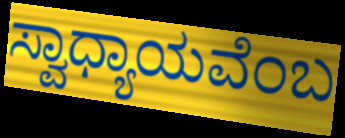
ಸ್ವಾಧ್ಯಾಯವೆಂಬ